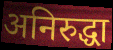
अनिरुद्धा